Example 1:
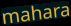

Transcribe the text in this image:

mahara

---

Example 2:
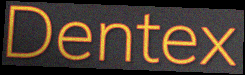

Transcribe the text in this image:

Dentex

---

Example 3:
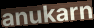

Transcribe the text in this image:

anukarn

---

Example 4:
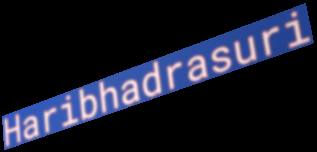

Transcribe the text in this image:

Haribhadrasuri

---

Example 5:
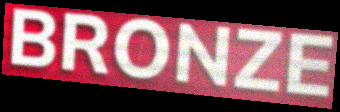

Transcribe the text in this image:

BRONZE